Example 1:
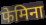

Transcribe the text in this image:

फेमिना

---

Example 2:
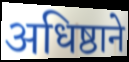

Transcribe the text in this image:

अधिष्ठाने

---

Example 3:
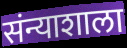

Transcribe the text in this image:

संन्याशाला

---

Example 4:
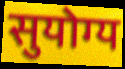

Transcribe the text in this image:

सुयोग्य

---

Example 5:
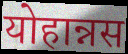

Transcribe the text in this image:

योहान्नस